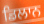
ਡਿਲਾਨ